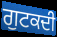
ਗੁਟਕਦੀ